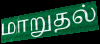
மாறுதல்